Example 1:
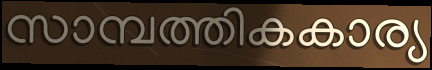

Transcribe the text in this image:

സാമ്പത്തികകാര്യ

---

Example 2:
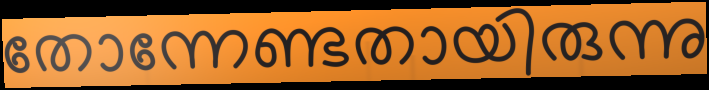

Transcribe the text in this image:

തോന്നേണ്ടതായിരുന്നു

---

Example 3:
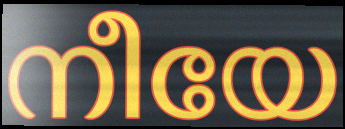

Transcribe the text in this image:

നീയേ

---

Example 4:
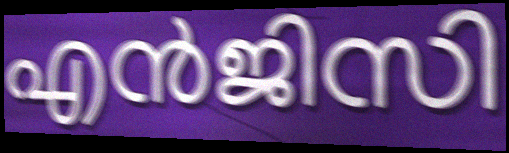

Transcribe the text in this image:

എൻജിസി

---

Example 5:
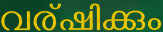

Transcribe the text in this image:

വര്ഷിക്കും